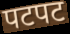
पटपट